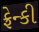
ફ્રેન્કી